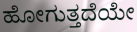
ಹೋಗುತ್ತದೆಯೇ